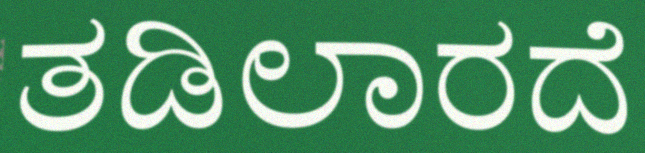
ತಡಿಲಾರದೆ